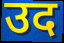
उद